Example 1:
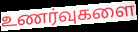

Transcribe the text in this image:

உணர்வுகளை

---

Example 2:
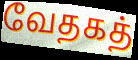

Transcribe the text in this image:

வேதகத்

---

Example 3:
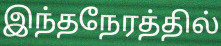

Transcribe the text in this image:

இந்தநேரத்தில்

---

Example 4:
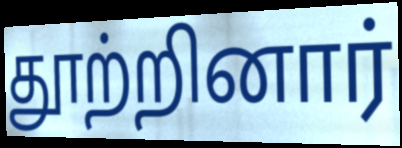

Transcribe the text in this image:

தூற்றினார்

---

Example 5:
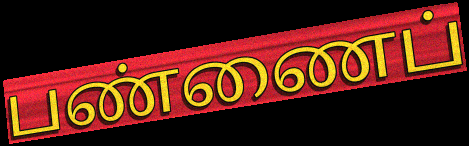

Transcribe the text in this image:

பண்ணைப்